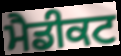
ਮੈਡੀਕਟ